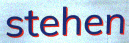
stehen